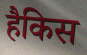
हैकिस